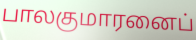
பாலகுமாரனைப்